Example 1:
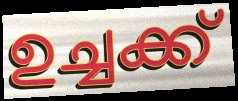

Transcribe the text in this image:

ഉച്ചക്ക്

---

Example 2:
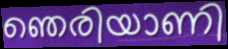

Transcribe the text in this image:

ഞെരിയാണി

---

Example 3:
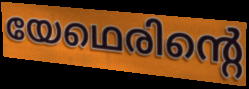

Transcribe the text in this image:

യേഥെരിന്റെ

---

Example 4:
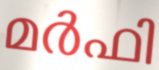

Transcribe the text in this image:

മർഫി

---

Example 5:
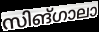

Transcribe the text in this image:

സിങ്ഗാലാ